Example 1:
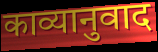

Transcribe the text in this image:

काव्यानुवाद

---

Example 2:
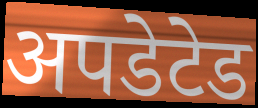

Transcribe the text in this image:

अपडेटेड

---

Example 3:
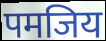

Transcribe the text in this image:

पमजिय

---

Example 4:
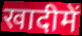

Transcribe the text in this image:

खादीमें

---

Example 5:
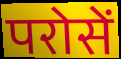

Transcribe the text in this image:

परोसें